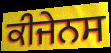
ਕੀਜੇਨਸ